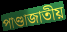
পাণ্ডাজাতীয়